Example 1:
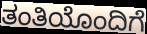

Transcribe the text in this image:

ತಂತಿಯೊಂದಿಗೆ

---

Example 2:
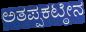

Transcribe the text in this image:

ಅತಪ್ಪಕಟ್ಠೇನ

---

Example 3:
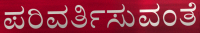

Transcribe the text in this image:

ಪರಿವರ್ತಿಸುವಂತೆ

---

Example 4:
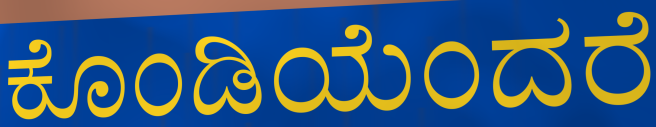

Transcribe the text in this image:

ಕೊಂಡಿಯೆಂದರೆ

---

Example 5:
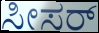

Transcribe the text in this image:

ಸೀಸರ್